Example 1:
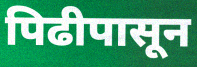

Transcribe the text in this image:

पिढीपासून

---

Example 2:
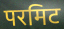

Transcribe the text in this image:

परमिट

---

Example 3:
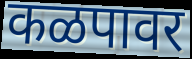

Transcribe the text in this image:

कळपावर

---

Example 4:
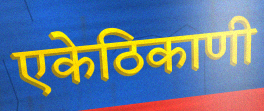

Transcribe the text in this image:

एकेठिकाणी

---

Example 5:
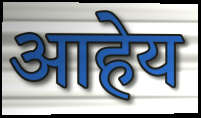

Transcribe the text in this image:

आहेय